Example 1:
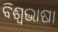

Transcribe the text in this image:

ବିଶ୍ୱଭାଷା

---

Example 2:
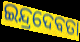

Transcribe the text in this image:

ଇନ୍ଦ୍ରଦେବତା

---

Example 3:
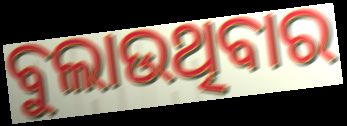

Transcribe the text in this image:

ବୁଲାଉଥିବାର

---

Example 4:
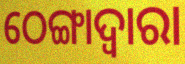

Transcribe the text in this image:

ଠେଙ୍ଗାଦ୍ୱାରା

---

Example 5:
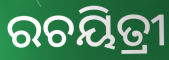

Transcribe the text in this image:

ରଚୟିତ୍ରୀ